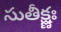
సుతీక్ష్ణః